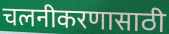
चलनीकरणासाठी